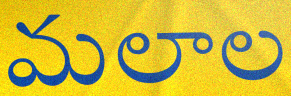
మలాల